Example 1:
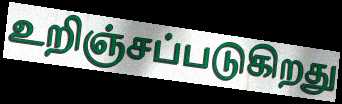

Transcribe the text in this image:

உறிஞ்சப்படுகிறது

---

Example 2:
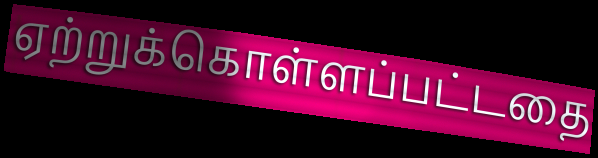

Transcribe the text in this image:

ஏற்றுக்கொள்ளப்பட்டதை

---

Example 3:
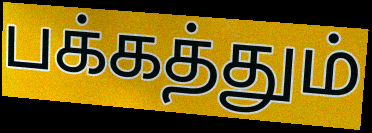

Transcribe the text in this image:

பக்கத்தும்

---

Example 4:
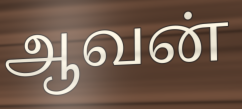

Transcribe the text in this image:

ஆவன்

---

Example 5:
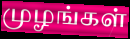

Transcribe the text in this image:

முழங்கள்